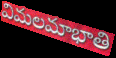
విమలమాభాతి